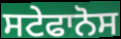
ਸਟੇਫਾਨੋਸ